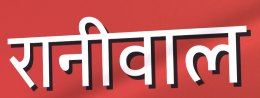
रानीवाल